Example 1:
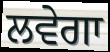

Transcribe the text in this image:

ਲਵੇਗਾ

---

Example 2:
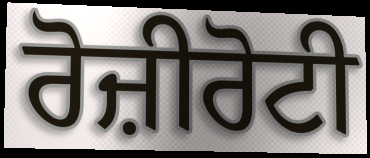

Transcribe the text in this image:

ਰੋਜ਼ੀਰੋਟੀ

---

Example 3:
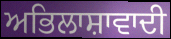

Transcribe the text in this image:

ਅਭਿਲਾਸ਼ਾਵਾਦੀ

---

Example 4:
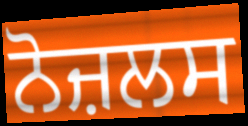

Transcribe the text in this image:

ਨੋਜ਼ਲਸ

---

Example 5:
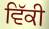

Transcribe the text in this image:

ਵਿੱਕੀ